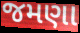
જમણા